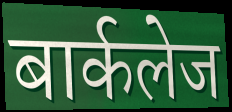
बार्कलेज